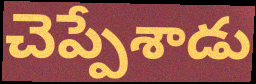
చెప్పేశాడు